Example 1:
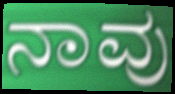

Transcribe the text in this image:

ನಾವು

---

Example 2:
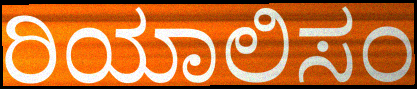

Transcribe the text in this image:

ರಿಯಾಲಿಸಂ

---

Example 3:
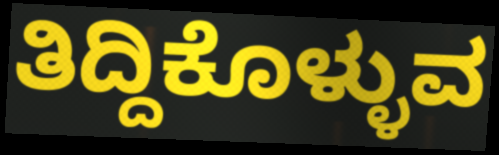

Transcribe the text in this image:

ತಿದ್ದಿಕೊಳ್ಳುವ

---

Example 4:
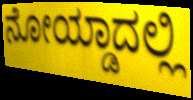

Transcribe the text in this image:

ನೋಯ್ಡಾದಲ್ಲಿ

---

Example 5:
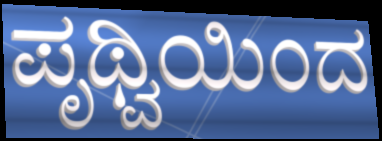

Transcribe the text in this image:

ಪೃಥ್ವಿಯಿಂದ